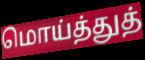
மொய்த்துத்